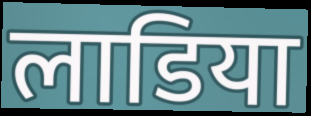
लाडिया